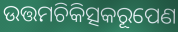
ଉତ୍ତମଚିକିତ୍ସକରୂପେଣ